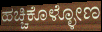
ಹಚ್ಚಿಕೊಳ್ಳೋಣ